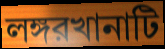
লঙ্গরখানাটি